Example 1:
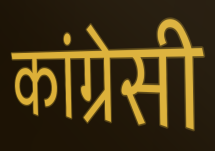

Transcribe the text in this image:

कांग्रेसी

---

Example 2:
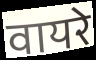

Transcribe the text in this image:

वायरे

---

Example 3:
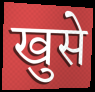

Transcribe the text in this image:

खुसे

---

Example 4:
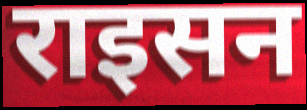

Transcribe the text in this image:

राइसन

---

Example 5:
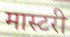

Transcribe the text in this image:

मास्टरी